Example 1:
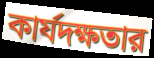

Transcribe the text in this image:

কার্যদক্ষতার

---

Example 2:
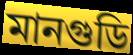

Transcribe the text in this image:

মানগুডি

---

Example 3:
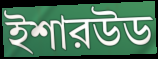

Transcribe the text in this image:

ইশারউড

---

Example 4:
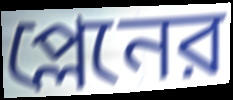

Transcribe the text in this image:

প্লেনের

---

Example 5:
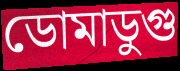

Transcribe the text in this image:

ডোমাডুগু